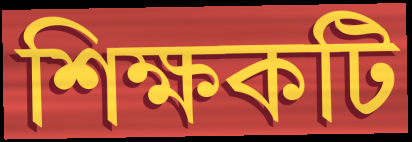
শিক্ষকটি